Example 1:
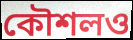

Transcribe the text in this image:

কৌশলও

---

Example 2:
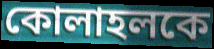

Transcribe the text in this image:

কোলাহলকে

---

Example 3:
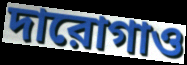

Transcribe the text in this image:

দারোগাও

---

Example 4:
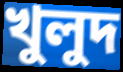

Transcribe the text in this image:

খুলুদ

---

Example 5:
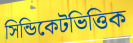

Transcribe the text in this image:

সিন্ডিকেটভিত্তিক